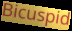
Bicuspid